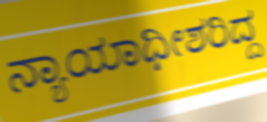
ನ್ಯಾಯಾಧೀಶರಿದ್ದ